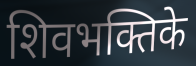
शिवभक्तिके